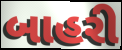
બાહરી